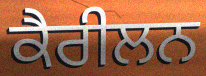
ਕੈਰੀਲਨ